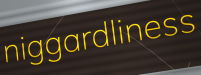
niggardliness